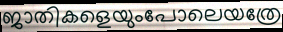
ജാതികളെയുംപോലെയത്രേ